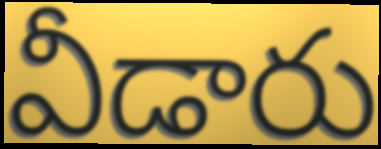
వీడారు